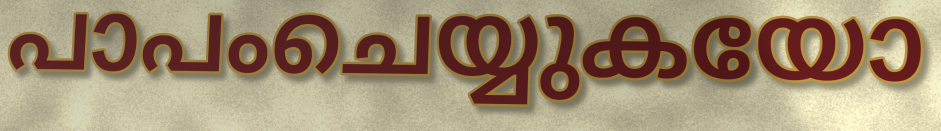
പാപംചെയ്യുകയോ